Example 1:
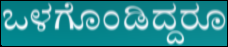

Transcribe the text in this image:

ಒಳಗೊಂಡಿದ್ದರೂ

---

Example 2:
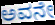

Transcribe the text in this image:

ಅವನೇ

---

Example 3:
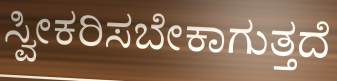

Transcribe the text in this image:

ಸ್ವೀಕರಿಸಬೇಕಾಗುತ್ತದೆ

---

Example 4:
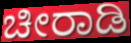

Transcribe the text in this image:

ಚೀರಾಡಿ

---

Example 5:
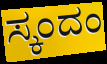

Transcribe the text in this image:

ಸ್ಕಂದಂ